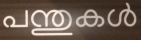
പന്തുകൾ